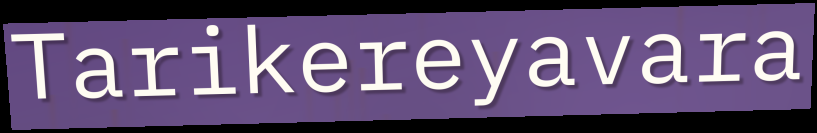
Tarikereyavara